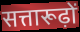
सत्तारूढ़ों